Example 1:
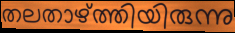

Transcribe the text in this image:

തലതാഴ്ത്തിയിരുന്നു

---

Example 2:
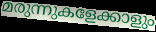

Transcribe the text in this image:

മരുന്നുകളേക്കാളും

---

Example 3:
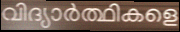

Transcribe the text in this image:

വിദ്യാർത്ഥികളെ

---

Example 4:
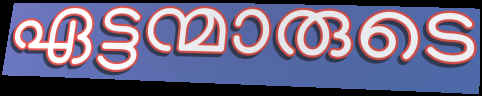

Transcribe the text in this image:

ഏട്ടന്മാരുടെ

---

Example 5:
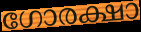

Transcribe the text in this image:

ഗോരക്ഷാ